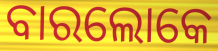
ବାରଲୋକେ